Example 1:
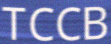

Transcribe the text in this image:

TCCB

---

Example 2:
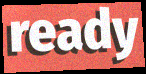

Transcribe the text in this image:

ready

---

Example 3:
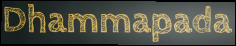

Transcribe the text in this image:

Dhammapada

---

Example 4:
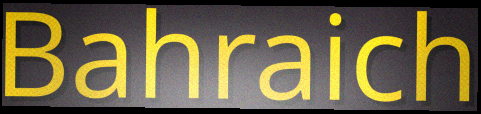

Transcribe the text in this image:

Bahraich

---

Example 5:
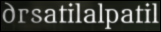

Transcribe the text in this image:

drsatilalpatil